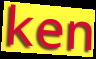
ken